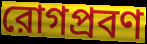
রোগপ্রবণ